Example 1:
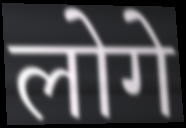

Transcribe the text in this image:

लोगे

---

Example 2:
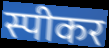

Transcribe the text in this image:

स्पीकर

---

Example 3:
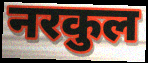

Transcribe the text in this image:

नरकुल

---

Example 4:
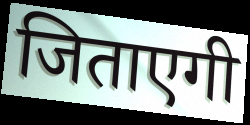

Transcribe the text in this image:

जिताएगी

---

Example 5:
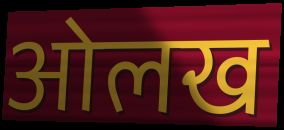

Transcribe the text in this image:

ओलख